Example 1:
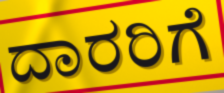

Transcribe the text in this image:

ದಾರರಿಗೆ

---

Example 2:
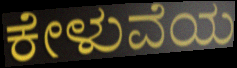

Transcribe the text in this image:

ಕೇಳುವೆಯ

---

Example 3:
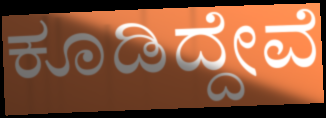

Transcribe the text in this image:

ಕೂಡಿದ್ದೇವೆ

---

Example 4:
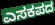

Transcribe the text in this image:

ಎಸಕಪದ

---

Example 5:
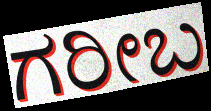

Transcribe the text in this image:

ಗರೀಬ